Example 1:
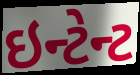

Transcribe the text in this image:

ઇન્ટેન્ટ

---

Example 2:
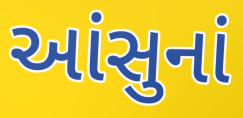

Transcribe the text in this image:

આંસુનાં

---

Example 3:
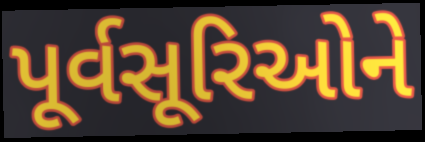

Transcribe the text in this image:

પૂર્વસૂરિઓને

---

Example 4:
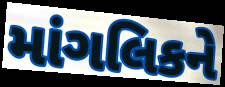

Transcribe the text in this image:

માંગલિકને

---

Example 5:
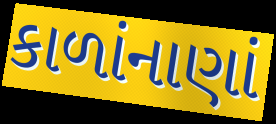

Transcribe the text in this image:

કાળાંનાણાં